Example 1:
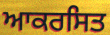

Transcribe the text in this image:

ਆਕਰਸਿਤ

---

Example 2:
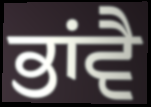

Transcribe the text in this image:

ਭਾਂਵੈ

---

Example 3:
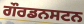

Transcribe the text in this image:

ਗੌਰਡਨਸਟਨ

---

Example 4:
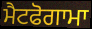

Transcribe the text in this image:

ਮੈਟਫੋਗਾਮਾ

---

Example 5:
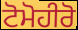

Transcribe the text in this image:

ਟੋਮੋਹੀਰੋ